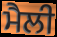
ਮੈਲੀ